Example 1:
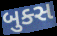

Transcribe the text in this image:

બુક્સ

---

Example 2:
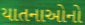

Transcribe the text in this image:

યાતનાઓનો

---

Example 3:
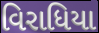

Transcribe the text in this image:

વિરાધિયા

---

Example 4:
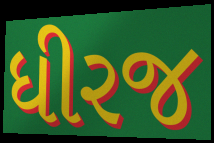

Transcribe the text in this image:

ધીરજ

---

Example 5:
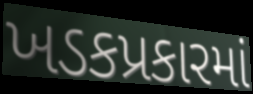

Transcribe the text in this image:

ખડકપ્રકારમાં